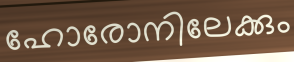
ഹോരോനിലേക്കും